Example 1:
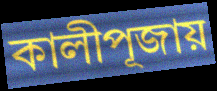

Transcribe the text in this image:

কালীপূজায়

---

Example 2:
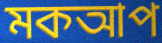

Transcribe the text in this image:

মকআপ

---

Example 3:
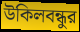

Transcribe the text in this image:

উকিলবন্ধুর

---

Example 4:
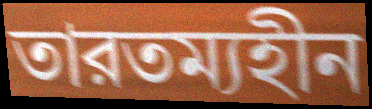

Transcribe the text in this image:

তারতম্যহীন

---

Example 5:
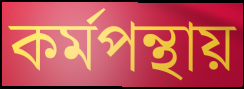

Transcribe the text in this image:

কর্মপন্থায়